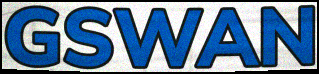
GSWAN